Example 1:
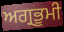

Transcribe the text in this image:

ਅਗ੍ਰਭੂਮੀ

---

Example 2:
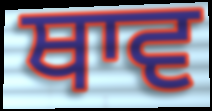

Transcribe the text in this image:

ਥਾਵ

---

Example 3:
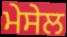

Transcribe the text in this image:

ਮੇਸੇਲ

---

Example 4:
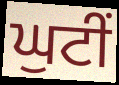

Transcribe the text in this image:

ਘੁਟੀਂ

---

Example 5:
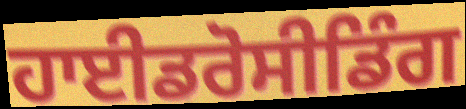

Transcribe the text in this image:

ਹਾਈਡਰੋਸੀਡਿੰਗ